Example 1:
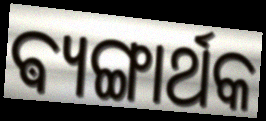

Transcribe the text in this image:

ଵ୍ୟଙ୍ଗାର୍ଥକ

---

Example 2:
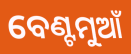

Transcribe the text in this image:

ବେଣ୍ଟମୁଆଁ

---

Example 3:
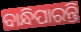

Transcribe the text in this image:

ବାନ୍ଧିପାରନ୍ତି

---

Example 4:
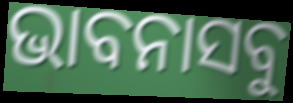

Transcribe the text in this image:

ଭାବନାସବୁ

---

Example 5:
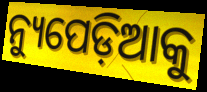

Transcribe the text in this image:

ନ୍ୟୁପେଡ଼ିଆକୁ